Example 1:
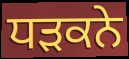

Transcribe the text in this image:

ਧਡ਼ਕਨੇ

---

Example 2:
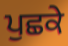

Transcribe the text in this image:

ਪੁਛਕੇ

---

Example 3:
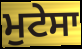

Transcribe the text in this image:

ਮੁਟੇਸਾ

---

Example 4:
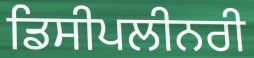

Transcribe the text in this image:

ਡਿਸੀਪਲੀਨਰੀ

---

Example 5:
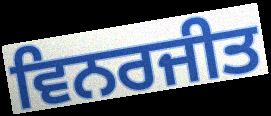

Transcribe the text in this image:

ਵਿਨਰਜੀਤ